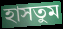
হাসতুম